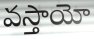
వస్తాయో